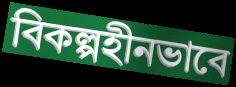
বিকল্পহীনভাবে